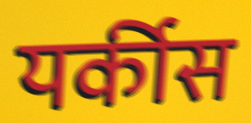
यर्कीस